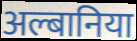
अल्बानिया